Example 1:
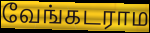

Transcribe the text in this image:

வேங்கடராம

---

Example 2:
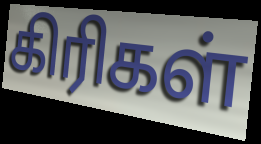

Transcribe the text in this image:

கிரிகள்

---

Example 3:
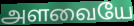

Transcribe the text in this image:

அளவையே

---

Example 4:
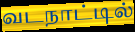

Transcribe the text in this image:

வடநாட்டில்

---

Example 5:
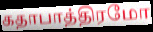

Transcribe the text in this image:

கதாபாத்திரமோ